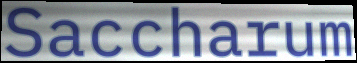
Saccharum